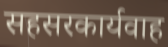
सहसरकार्यवाह